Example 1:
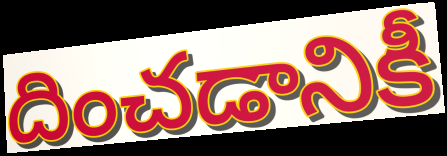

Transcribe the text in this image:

దించడానికీ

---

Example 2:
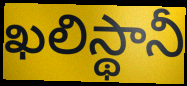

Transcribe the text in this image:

ఖలిస్థానీ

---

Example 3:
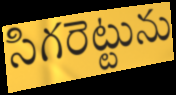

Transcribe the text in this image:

సిగరెట్టును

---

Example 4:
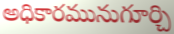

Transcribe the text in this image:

అధికారమునుగూర్చి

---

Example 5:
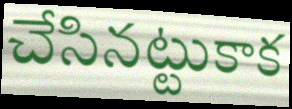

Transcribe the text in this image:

చేసినట్టుకాక